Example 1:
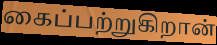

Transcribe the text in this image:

கைப்பற்றுகிறான்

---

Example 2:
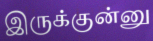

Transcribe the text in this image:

இருக்குன்னு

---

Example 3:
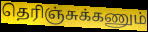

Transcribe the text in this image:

தெரிஞ்சுக்கணும்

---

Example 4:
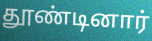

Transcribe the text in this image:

தூண்டினார்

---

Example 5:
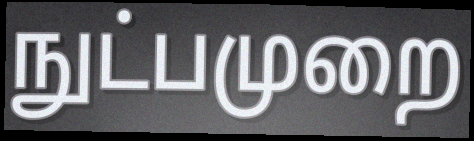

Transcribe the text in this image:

நுட்பமுறை